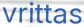
vrittas